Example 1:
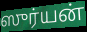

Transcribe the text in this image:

ஸுர்யன்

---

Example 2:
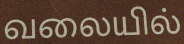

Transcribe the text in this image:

வலையில்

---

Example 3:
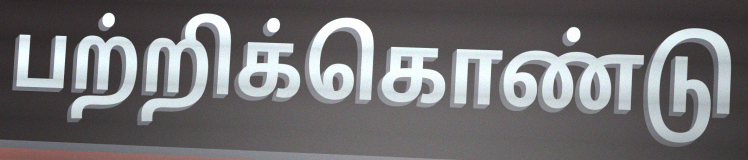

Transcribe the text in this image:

பற்றிக்கொண்டு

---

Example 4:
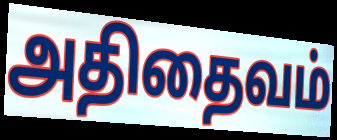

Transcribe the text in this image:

அதிதைவம்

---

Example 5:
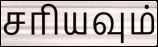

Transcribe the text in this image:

சரியவும்